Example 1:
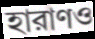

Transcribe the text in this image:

হারাণও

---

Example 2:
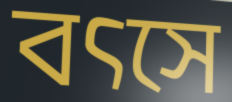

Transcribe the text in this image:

বৎসে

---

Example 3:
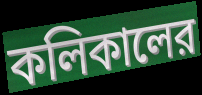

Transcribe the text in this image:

কলিকালের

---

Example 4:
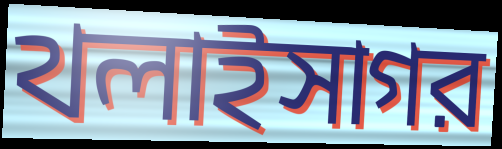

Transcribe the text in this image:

থলাইসাগর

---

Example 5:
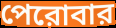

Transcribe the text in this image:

পেরোবার